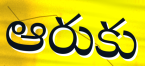
ఆరుకు